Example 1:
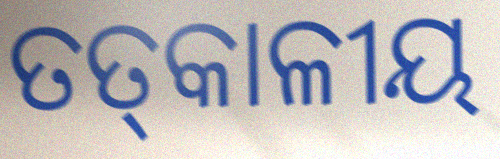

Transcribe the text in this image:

ତତ୍‌କାଳୀୟ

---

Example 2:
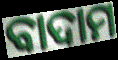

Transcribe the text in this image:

ବାଦାମ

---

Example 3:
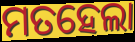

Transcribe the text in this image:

ମତହେଲା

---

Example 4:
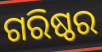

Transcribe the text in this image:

ଗରିଷ୍ଠର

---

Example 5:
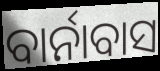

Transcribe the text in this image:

ବାର୍ନାବାସ